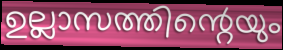
ഉല്ലാസത്തിന്റെയും